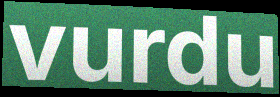
vurdu